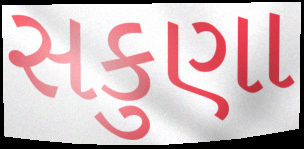
સકુણા